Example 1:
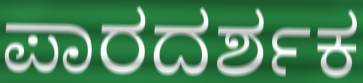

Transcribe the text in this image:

ಪಾರದರ್ಶಕ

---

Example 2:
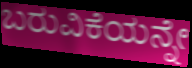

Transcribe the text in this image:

ಬರುವಿಕೆಯನ್ನೇ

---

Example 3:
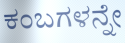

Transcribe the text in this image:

ಕಂಬಗಳನ್ನೇ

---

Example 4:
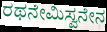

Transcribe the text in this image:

ರಥನೇಮಿಸ್ವನೇನ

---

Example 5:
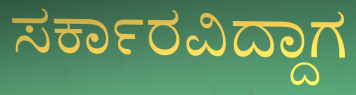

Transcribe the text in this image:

ಸರ್ಕಾರವಿದ್ದಾಗ